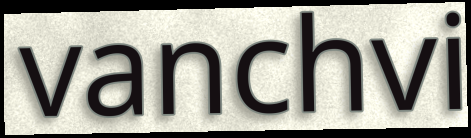
vanchvi